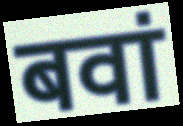
बवां